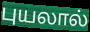
புயலால்